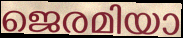
ജെരമിയാ